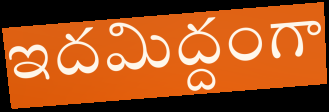
ఇదమిద్దంగా